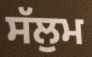
ਸੱਲੁਮ